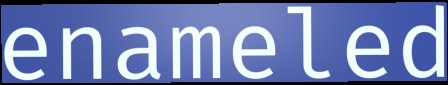
enameled